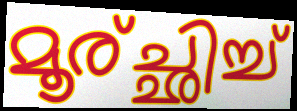
മൂര്ച്ഛിച്ച്